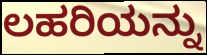
ಲಹರಿಯನ್ನು